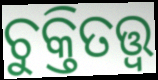
ଚୁକ୍ତିତତ୍ତ୍ଵ